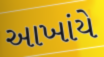
આખાંયે